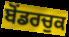
ਬੋਂਡਰਚੁਕ